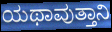
ಯಥಾವುತ್ತಾನಿ